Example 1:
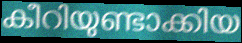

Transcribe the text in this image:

കീറിയുണ്ടാക്കിയ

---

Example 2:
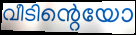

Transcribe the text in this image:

വീടിന്റെയോ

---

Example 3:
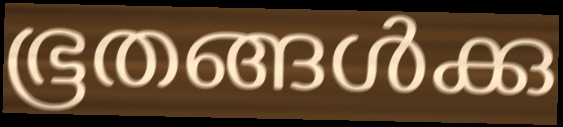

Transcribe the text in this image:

ഭൂതങ്ങൾക്കു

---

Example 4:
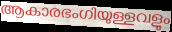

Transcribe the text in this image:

ആകാരഭംഗിയുള്ളവളും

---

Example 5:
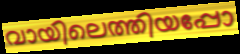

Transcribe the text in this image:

വായിലെത്തിയപ്പോ